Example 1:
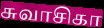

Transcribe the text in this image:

சுவாசிகா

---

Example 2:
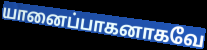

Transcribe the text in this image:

யானைப்பாகனாகவே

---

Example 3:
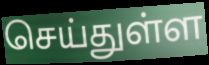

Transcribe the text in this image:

செய்துள்ள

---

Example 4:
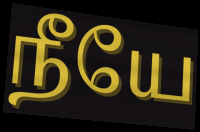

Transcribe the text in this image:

நீயே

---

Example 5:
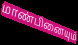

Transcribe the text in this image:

மாண்பினையும்